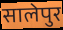
सालेपुर